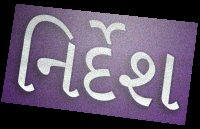
નિર્દેશ